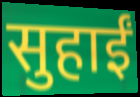
सुहाईं